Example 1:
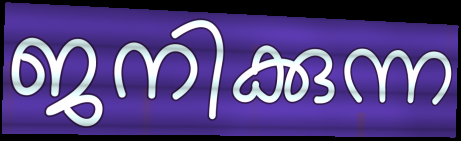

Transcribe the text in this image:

ജനിക്കുന്ന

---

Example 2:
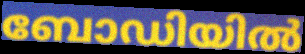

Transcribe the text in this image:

ബോഡിയിൽ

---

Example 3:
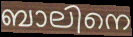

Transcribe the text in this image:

ബാലിനെ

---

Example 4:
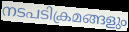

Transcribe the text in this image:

നടപടിക്രമങ്ങളും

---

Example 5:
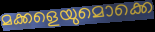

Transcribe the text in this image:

മക്കളെയുമൊക്കെ